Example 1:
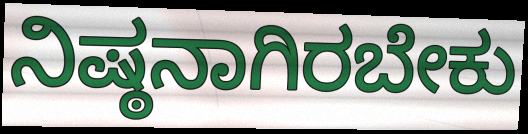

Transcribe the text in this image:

ನಿಷ್ಠನಾಗಿರಬೇಕು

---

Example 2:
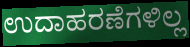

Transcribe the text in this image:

ಉದಾಹರಣೆಗಳಿಲ್ಲ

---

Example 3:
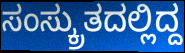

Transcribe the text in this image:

ಸಂಸ್ಕ್ರುತದಲ್ಲಿದ್ದ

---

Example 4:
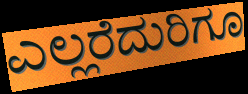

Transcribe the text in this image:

ಎಲ್ಲರೆದುರಿಗೂ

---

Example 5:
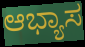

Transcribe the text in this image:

ಆಭ್ಯಾಸ